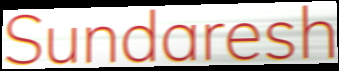
Sundaresh